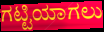
ಗಟ್ಟಿಯಾಗಲು